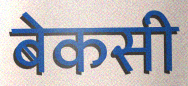
बेकसी